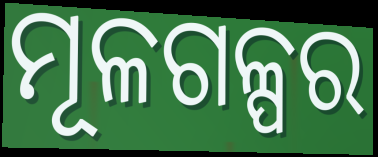
ମୂଳଗଳ୍ପର